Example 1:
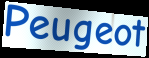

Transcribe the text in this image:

Peugeot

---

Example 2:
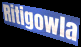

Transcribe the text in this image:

Ritigowla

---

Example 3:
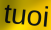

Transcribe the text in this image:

tuoi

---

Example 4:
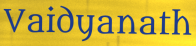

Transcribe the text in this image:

Vaidyanath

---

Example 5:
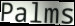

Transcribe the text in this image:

Palms